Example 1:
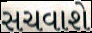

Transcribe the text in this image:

સચવાશે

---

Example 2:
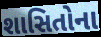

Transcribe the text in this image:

શાસિતોના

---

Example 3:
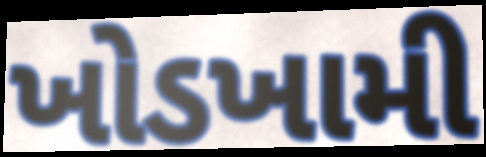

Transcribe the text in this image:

ખોડખામી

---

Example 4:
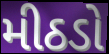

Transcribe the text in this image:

મીઠડો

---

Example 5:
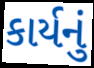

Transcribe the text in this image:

કાર્યનું